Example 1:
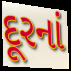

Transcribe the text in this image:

દૂરનાં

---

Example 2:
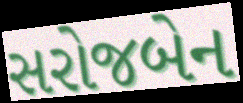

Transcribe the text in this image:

સરોજબેન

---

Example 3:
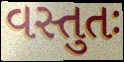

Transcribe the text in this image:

વસ્તુતઃ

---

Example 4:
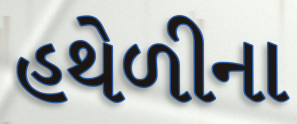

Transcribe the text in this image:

હથેળીના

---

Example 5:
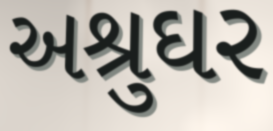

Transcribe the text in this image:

અશ્રુઘર